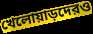
খেলোয়াড়দেরও